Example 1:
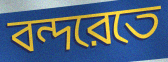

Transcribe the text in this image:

বন্দরেতে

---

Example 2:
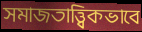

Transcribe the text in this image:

সমাজতাত্ত্বিকভাবে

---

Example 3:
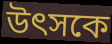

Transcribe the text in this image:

উৎসকে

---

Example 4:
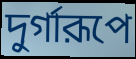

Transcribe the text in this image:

দুর্গারূপে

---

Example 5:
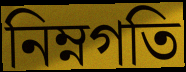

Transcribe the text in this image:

নিম্নগতি